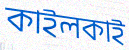
কাইলকাই